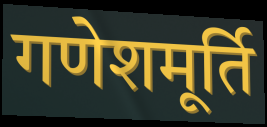
गणेशमूर्ति